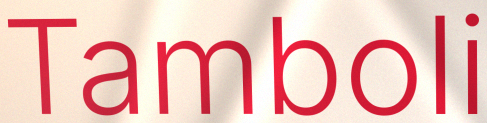
Tamboli